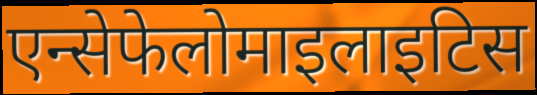
एन्सेफेलोमाइलाइटिस